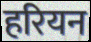
हरियन